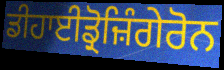
ਡੀਹਾਈਡ੍ਰੋਜ਼ਿੰਗੇਰੋਨ